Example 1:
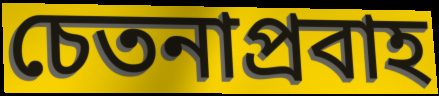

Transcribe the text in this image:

চেতনাপ্রবাহ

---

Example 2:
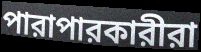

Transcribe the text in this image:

পারাপারকারীরা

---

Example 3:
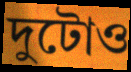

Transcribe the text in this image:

দুটোও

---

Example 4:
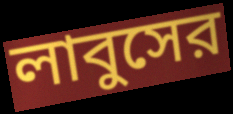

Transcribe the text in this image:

লাবুসের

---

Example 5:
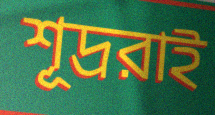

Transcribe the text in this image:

শূদ্ররাই